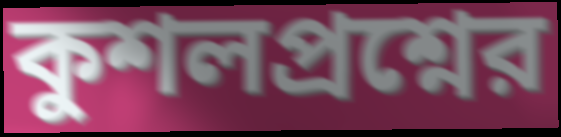
কুশলপ্রশ্নের